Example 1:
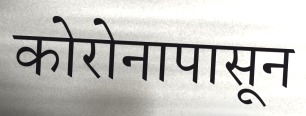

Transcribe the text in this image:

कोरोनापासून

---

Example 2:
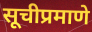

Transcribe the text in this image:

सूचीप्रमाणे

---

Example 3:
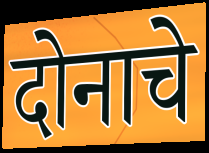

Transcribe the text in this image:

दोनाचे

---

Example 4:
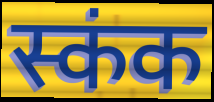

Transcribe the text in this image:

स्कंक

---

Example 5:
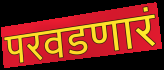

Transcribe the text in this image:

परवडणारं